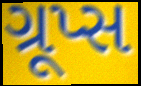
ગ્રૂપ્સ